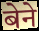
बेने